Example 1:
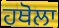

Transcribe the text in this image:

ਹਥੋਲਾ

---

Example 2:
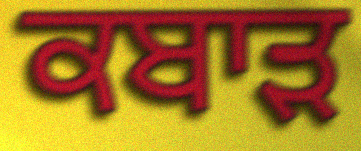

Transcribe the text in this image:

ਕਬਾੜ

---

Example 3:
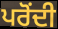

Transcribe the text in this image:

ਪਰੋਂਦੀ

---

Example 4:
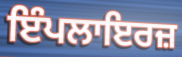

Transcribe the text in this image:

ਇੰਪਲਾਇਰਜ਼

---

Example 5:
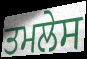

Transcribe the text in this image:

ਤਮਲੇਸ